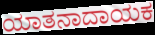
ಯಾತನಾದಾಯಕ